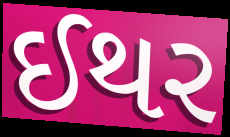
ઈથર